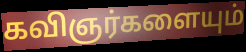
கவிஞர்களையும்